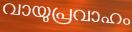
വായുപ്രവാഹം